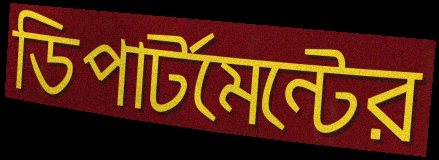
ডিপার্টমেন্টের